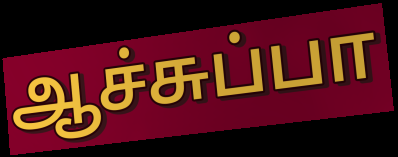
ஆச்சுப்பா